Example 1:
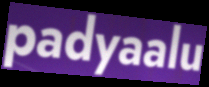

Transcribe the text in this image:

padyaalu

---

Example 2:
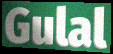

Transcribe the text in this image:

Gulal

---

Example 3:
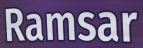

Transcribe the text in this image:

Ramsar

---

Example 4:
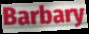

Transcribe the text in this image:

Barbary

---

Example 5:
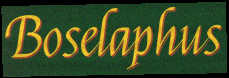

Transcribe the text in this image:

Boselaphus